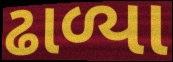
ઢાળ્યા